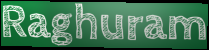
Raghuram